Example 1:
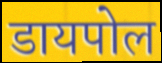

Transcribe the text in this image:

डायपोल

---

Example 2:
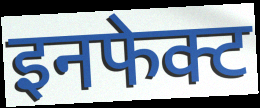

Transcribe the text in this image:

इनफेक्ट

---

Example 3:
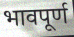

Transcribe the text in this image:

भावपूर्ण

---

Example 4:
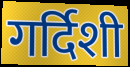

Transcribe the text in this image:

गर्दिशी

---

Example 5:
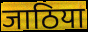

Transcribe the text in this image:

जाठिया